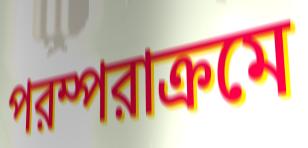
পরম্পরাক্রমে